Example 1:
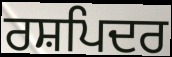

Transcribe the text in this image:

ਰਸ਼ਪਿਦਰ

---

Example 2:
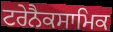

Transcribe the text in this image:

ਟਰੇਨੈਕਸਾਮਿਕ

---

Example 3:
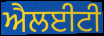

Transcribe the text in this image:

ਐਲਈਟੀ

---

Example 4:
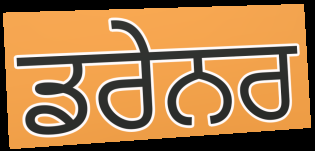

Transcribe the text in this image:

ਡਰੇਨਰ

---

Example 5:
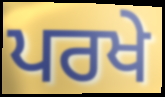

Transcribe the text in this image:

ਪਰਖੇ